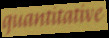
quantitative